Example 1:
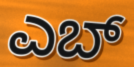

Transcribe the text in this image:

ಎಬ್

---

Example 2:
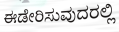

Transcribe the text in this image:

ಈಡೇರಿಸುವುದರಲ್ಲಿ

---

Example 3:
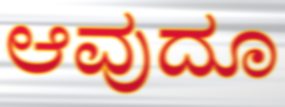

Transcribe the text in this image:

ಆವುದೂ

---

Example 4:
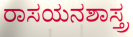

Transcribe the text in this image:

ರಾಸಯನಶಾಸ್ತ್ರ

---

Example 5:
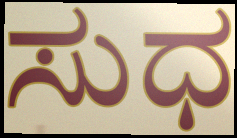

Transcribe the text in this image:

ಸುಧ